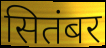
सितंबर